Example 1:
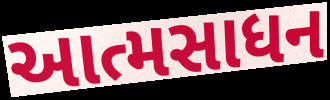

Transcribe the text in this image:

આત્મસાધન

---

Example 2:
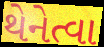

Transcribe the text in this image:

થેનેત્વા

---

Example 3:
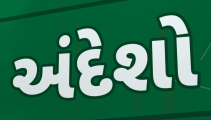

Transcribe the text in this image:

અંદેશો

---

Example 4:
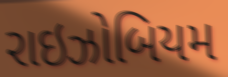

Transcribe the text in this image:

રાઇઝોબિયમ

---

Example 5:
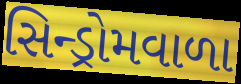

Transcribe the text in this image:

સિન્ડ્રોમવાળા